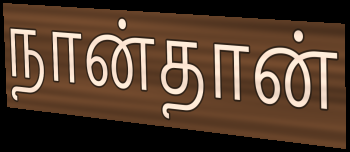
நான்தான்